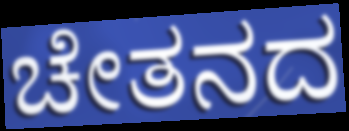
ಚೇತನದ